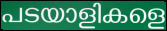
പടയാളികളെ